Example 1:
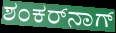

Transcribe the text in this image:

ಶಂಕರ್‌ನಾಗ್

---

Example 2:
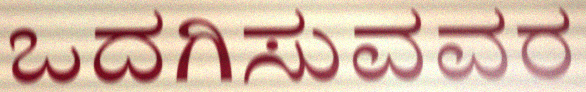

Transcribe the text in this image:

ಒದಗಿಸುವವರ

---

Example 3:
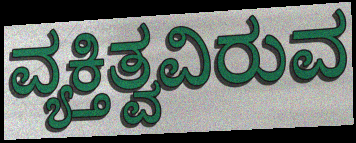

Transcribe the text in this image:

ವ್ಯಕ್ತಿತ್ವವಿರುವ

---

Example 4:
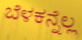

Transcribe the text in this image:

ಬೆಳಕನ್ನೆಲ್ಲ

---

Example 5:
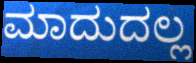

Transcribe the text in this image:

ಮಾದುದಲ್ಲ